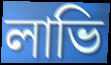
লাভি